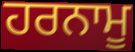
ਹਰਨਾਮੂ